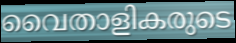
വൈതാളികരുടെ